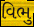
વિભુ